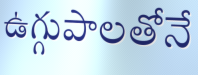
ఉగ్గుపాలతోనే